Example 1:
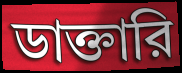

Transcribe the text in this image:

ডাক্তারি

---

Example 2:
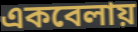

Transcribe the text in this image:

একবেলায়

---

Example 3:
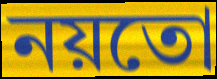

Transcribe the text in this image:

নয়তো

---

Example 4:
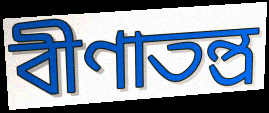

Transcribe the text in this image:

বীণাতন্ত্র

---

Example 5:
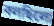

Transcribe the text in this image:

বলছিলো